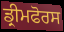
ਡ੍ਰੀਮਫੋਰਸ